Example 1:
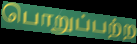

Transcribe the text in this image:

பொறுப்பற்ற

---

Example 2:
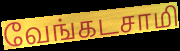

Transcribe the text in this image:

வேங்கடசாமி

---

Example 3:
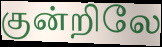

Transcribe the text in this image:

குன்றிலே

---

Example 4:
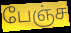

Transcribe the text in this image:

பேஞ்ச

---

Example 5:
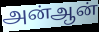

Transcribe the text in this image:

அன்ஆன்